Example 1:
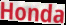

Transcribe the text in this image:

Honda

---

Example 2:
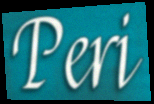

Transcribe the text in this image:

Peri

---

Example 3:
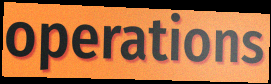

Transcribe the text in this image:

operations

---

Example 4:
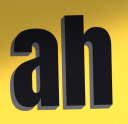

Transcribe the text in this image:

ah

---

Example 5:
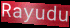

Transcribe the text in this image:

Rayudu